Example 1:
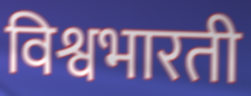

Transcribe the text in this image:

विश्वभारती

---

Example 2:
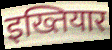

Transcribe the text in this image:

इख्तियार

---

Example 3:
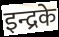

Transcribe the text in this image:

इन्द्रके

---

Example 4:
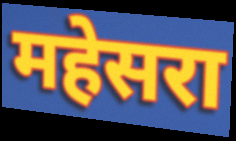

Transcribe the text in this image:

महेसरा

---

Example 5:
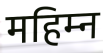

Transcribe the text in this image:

महिम्न